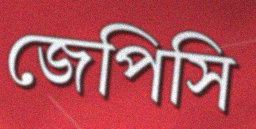
জেপিসি